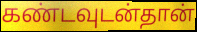
கண்டவுடன்தான்